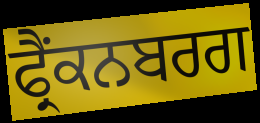
ਫ੍ਰੈਂਕਨਬਰਗ